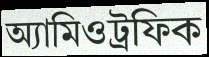
অ্যামিওট্রফিক